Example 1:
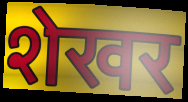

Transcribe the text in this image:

शेखर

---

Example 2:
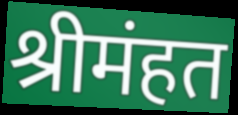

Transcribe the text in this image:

श्रीमंहत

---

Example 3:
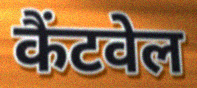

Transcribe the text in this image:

कैंटवेल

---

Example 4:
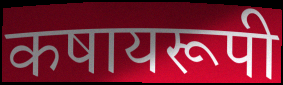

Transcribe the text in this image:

कषायरूपी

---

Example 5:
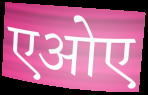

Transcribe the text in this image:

एओए